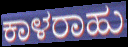
ಕಾಳರಾಹು